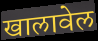
खालावेल